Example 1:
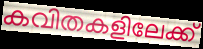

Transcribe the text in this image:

കവിതകളിലേക്ക്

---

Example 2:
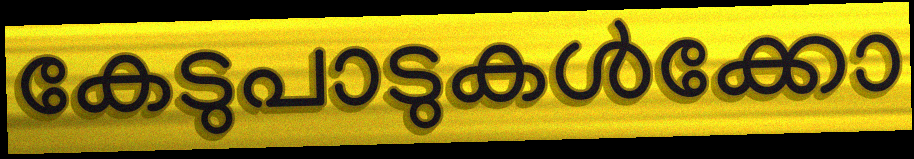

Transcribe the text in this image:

കേടുപാടുകൾക്കോ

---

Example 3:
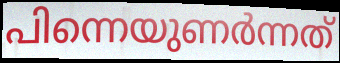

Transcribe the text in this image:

പിന്നെയുണർന്നത്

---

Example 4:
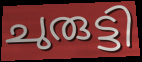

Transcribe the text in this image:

ചുരുട്ടി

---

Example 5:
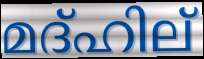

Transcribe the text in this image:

മദ്ഹില്